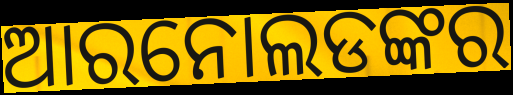
ଆରନୋଲଡଙ୍କର